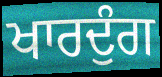
ਖਾਰਦੁੰਗ